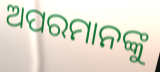
ଅପରମାନଙ୍କୁ